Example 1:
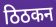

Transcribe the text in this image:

ठिठकन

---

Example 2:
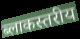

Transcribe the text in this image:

ब्लाकस्तरीय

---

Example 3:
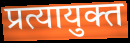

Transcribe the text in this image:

प्रत्यायुक्त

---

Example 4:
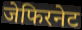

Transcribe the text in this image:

जेफिरनेट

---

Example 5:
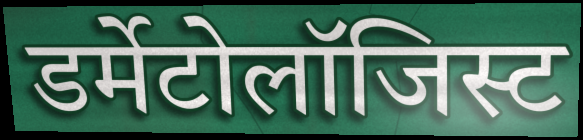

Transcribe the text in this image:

डर्मेटोलॉजिस्ट